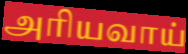
அரியவாய்